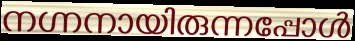
നഗ്നനായിരുന്നപ്പോൾ